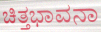
ಚಿತ್ತಭಾವನಾ